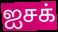
ஐசக்